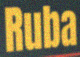
Ruba